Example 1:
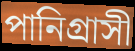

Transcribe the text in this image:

পানিগ্রাসী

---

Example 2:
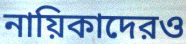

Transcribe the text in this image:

নায়িকাদেরও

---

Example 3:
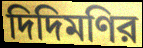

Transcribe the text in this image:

দিদিমণির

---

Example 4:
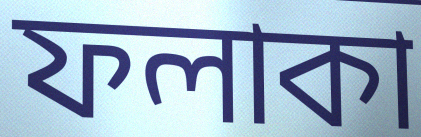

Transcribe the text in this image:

ফলাকা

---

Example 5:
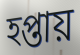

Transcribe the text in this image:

হপ্তায়